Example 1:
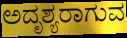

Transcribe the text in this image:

ಅದೃಶ್ಯರಾಗುವ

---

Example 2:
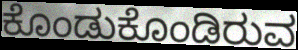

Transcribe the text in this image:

ಕೊಂಡುಕೊಂಡಿರುವ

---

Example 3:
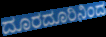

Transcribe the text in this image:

ದೂರದೂರಿನಿಂದ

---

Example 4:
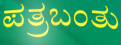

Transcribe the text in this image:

ಪತ್ರಬಂತು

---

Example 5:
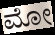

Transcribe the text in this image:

ಮೋ